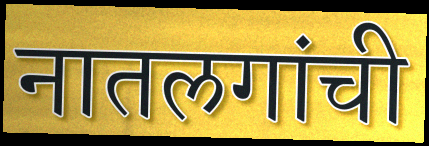
नातलगांची